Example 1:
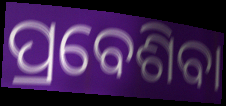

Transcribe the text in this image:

ପ୍ରବେଶିବା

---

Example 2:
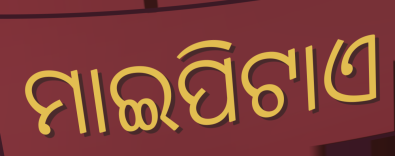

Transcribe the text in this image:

ମାଇପିଟାଏ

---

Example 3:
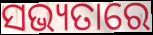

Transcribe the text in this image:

ସଭ୍ୟତାରେ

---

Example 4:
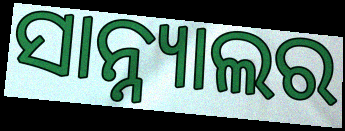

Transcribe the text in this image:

ସାନ୍ନ୍ୟାଲର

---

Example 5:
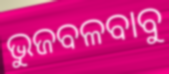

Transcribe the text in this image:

ଭୁଜବଳବାବୁ